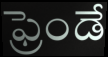
ఫ్రెండే